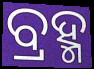
ବ୍ରହ୍ମ